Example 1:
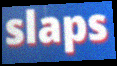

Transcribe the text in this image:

slaps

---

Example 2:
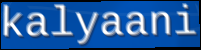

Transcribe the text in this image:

kalyaani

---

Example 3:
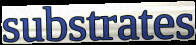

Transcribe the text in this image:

substrates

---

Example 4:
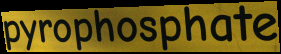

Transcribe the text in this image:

pyrophosphate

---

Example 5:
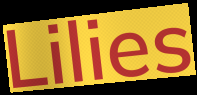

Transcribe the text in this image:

Lilies